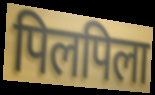
पिलपिला